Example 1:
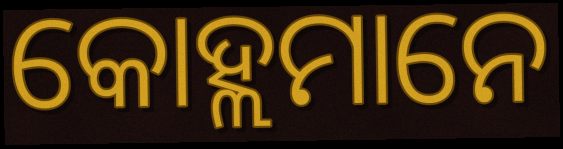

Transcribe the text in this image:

କୋହ୍ଲମାନେ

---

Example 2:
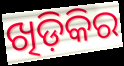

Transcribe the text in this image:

ଖିଡ଼ିକିର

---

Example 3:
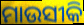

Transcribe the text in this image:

ମାଉସୀକି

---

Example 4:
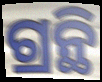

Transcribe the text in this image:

ଗ୍ରନ୍ଥି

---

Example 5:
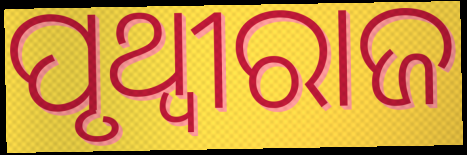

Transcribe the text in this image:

ପୃଥ୍ୱୀରାଜ